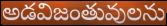
అడవిజంతువులను